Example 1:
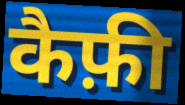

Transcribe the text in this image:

कैफ़ी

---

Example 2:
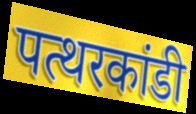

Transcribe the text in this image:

पत्थरकांडी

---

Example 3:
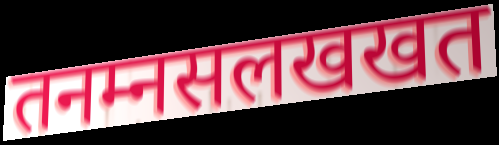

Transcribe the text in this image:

तनम्नसलखखत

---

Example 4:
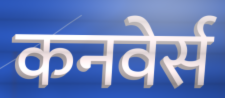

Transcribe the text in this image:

कनवेर्स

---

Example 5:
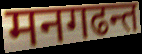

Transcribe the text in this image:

मनगढन्त